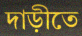
দাড়ীতে